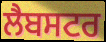
ਲੈਬਸਟਰ